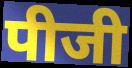
पीजी